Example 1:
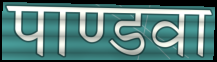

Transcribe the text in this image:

पाण्डवा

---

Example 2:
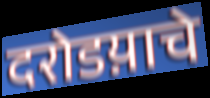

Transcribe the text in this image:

दरोडय़ाचे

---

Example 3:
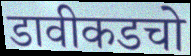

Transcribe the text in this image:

डावीकडचो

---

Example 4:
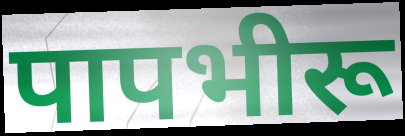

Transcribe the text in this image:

पापभीरू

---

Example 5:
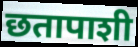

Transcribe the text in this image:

छतापाशी